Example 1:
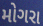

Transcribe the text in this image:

મોગરા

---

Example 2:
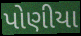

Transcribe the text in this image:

પોણીયા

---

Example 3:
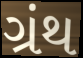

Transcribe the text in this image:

ગ્રંથ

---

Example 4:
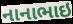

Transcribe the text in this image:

નાનાભાઇ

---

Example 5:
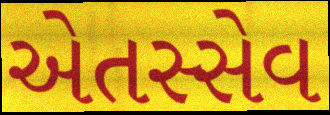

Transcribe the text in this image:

એતસ્સેવ